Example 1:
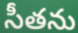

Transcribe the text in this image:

సీతను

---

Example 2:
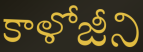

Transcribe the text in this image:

కాళోజీని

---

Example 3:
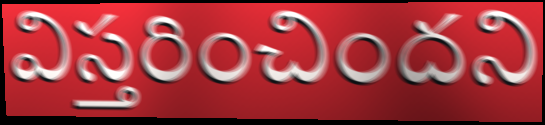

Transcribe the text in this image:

విస్తరించిందని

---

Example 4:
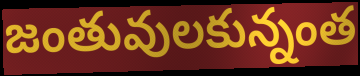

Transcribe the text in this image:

జంతువులకున్నంత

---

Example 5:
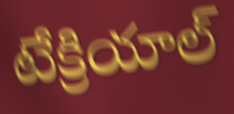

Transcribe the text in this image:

టేక్రియాల్